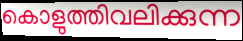
കൊളുത്തിവലിക്കുന്ന